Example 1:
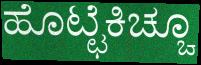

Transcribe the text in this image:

ಹೊಟ್ಟೆಕಿಚ್ಚೂ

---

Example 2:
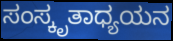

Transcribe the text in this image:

ಸಂಸ್ಕೃತಾಧ್ಯಯನ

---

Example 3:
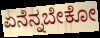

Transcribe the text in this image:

ಏನೆನ್ನಬೇಕೋ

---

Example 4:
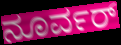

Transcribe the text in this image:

ನೂರ್ವರ್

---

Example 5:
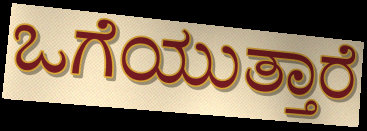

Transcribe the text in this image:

ಒಗೆಯುತ್ತಾರೆ